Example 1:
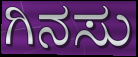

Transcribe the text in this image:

ಗಿನಸು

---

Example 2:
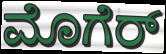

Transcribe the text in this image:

ಮೊಗೆರ್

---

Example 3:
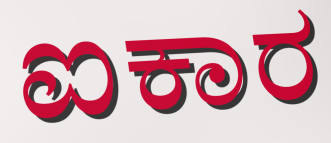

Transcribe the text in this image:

ಐಕಾರ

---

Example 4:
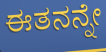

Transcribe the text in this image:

ಈತನನ್ನೇ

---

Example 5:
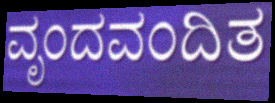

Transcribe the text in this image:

ವೃಂದವಂದಿತ